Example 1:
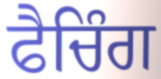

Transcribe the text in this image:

ਫੈਚਿੰਗ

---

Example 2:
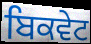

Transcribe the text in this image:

ਬਿਕਵੇਟ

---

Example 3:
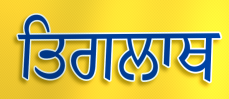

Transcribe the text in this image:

ਤਿਗਲਾਥ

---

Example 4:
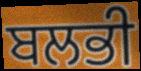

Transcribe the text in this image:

ਬਲਭੀ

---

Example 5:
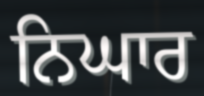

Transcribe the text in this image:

ਨਿਘਾਰ